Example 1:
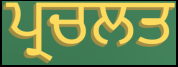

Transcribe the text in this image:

ਪ੍ਰਚਲਤ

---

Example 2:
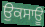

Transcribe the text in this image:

ਉਕਸਾਊ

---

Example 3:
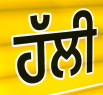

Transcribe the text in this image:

ਹੱਲੀ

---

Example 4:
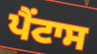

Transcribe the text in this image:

ਪੈਂਟਾਸ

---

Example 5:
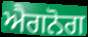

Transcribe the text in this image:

ਐਗਨੋਗ